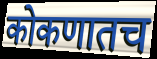
कोकणातच